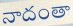
నాదంతా